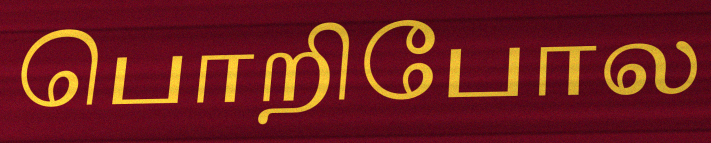
பொறிபோல